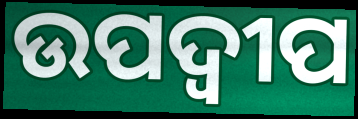
ଉପଦ୍ବୀପ